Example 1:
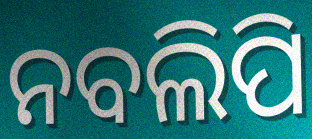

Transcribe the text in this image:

ନବଲିପି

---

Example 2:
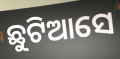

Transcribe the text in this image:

ଛୁଟିଆସେ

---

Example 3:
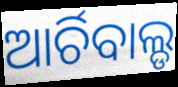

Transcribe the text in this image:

ଆର୍ଚିବାଲ୍ଡ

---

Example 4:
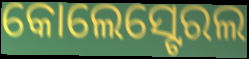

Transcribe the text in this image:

କୋଲେସ୍ଟେରଲ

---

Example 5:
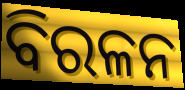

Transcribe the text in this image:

ବିରଳନ